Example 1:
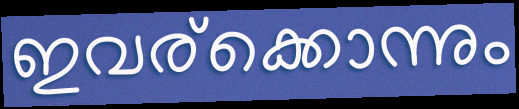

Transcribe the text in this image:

ഇവര്ക്കൊന്നും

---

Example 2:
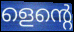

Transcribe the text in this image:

ളെന്റെ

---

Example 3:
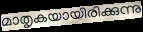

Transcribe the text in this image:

മാതൃകയായിരിക്കുന്നു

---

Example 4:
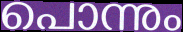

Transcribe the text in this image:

പൊന്നും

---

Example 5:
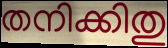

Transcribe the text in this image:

തനിക്കിതു